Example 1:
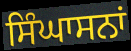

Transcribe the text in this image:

ਸਿੰਘਾਸਨਾਂ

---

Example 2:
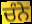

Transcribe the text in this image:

ਚੰਨੇ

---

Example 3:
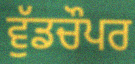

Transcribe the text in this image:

ਵੁੱਡਚੌਪਰ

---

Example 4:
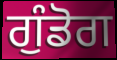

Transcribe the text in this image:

ਗੁੰਡੋਗ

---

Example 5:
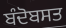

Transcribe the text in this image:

ਬੰਦੋਬਸਤ